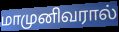
மாமுனிவரால்